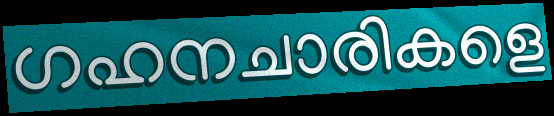
ഗഹനചാരികളെ